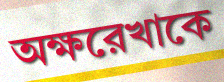
অক্ষরেখাকে